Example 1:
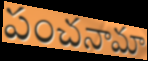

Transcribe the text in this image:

పంచనామా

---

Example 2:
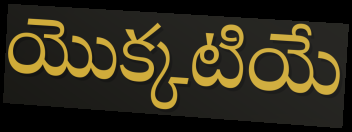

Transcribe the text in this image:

యొక్కటియే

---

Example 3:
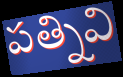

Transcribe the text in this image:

పత్నివి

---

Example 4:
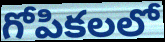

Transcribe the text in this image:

గోపికలలో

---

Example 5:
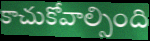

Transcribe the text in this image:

కాచుకోవాల్సింది